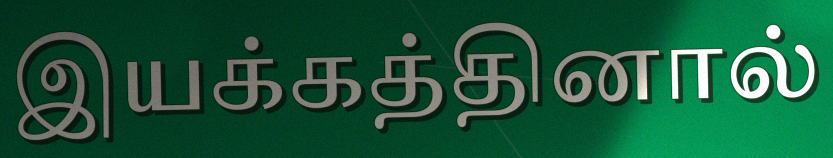
இயக்கத்தினால்